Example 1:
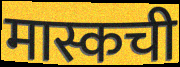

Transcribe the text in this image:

मास्कची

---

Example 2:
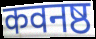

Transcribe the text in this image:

कवनष्ठ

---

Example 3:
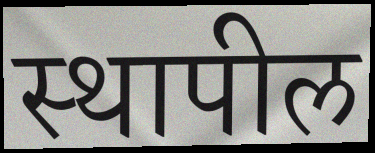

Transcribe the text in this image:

स्थापील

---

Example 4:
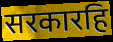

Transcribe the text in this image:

सरकारहि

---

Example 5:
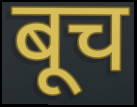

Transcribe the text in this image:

बूच